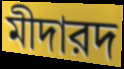
মীদারদ